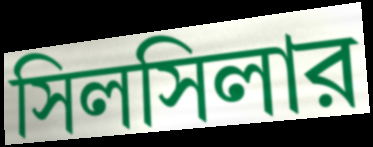
সিলসিলার